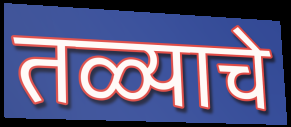
तळ्याचे